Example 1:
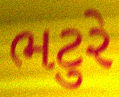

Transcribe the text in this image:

ભટુરે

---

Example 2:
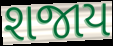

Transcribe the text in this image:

શજાય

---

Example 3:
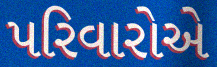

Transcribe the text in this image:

પરિવારોએ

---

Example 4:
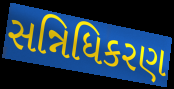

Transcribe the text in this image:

સન્નિધિકરણ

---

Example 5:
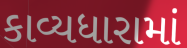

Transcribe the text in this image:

કાવ્યધારામાં